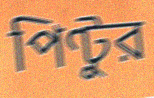
পিণ্টুর